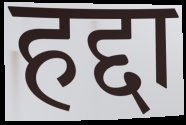
हद्दा